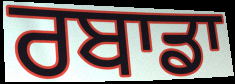
ਰਬਾਡਾ